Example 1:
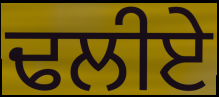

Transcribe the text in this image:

ਢਲੀਏ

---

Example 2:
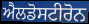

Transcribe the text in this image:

ਐਲਡੋਸਟੀਰੋਨ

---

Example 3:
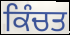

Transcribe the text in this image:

ਕਿੰਚਤ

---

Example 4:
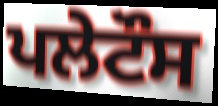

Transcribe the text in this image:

ਪਲੇਟੌਸ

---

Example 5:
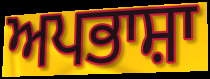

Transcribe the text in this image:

ਅਪਭਾਸ਼ਾ